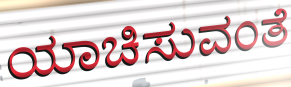
ಯಾಚಿಸುವಂತೆ